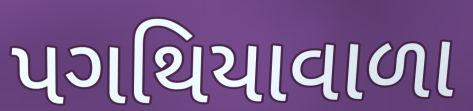
પગથિયાવાળા